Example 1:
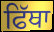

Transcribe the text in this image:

ਫਿੱਥਾ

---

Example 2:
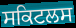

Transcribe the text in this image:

ਸਕਿਟਲਸ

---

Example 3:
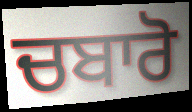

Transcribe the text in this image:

ਚਬਾਰੋ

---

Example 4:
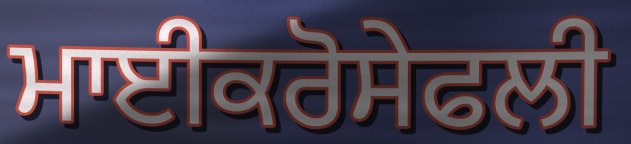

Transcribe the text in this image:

ਮਾਈਕਰੋਸੇਫਲੀ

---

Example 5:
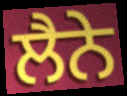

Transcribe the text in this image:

ਲੈਨੇ